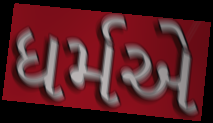
ધર્મએ